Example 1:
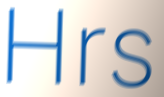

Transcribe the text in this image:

Hrs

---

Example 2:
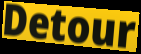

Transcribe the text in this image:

Detour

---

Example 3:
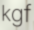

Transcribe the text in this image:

kgf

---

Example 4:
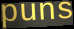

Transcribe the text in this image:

puns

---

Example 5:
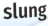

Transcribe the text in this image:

slung